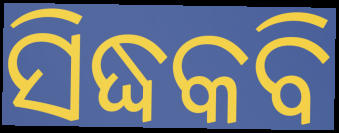
ସିଦ୍ଧକବି